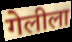
गेलीला